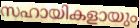
സഹായികളായും